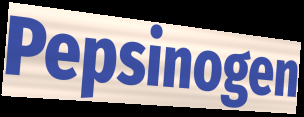
Pepsinogen